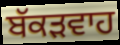
ਬੱਕੜਵਾਹ